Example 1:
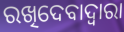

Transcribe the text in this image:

ରଖିଦେବାଦ୍ୱାରା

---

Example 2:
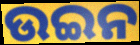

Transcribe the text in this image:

ଉଇନ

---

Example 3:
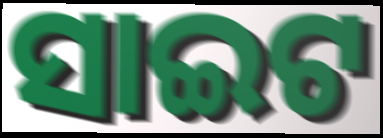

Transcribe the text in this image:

ସାଇଟ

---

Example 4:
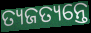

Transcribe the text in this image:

ତ୍ୟଜତ୍ୟନ୍ତେ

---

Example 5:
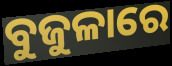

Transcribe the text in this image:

ବୁଜୁଳାରେ